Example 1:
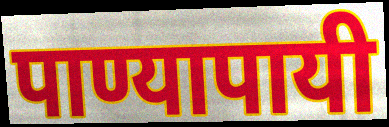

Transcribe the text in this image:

पाण्यापायी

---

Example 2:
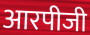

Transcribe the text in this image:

आरपीजी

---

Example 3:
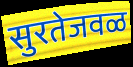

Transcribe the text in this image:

सुरतेजवळ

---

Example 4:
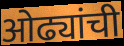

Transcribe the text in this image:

ओढ्यांची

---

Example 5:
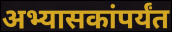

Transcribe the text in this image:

अभ्यासकांपर्यंत